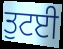
ਤੁਟਈ